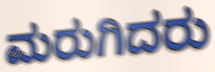
ಮರುಗಿದರು